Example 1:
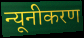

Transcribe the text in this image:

न्यूनीकरण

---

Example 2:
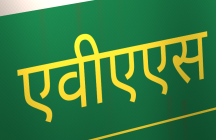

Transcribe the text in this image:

एवीएएस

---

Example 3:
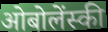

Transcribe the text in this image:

ओबोलेंस्की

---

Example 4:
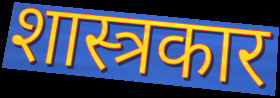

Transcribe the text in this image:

शास्त्रकार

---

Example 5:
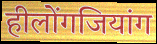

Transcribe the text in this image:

हीलोंगजियांग